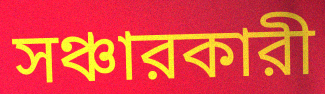
সঞ্চারকারী